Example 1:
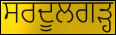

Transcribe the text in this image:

ਸਰਦੂਲਗੜ੍ਹ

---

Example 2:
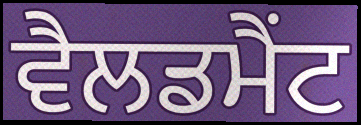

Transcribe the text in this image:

ਵੈਲਡਮੈਂਟ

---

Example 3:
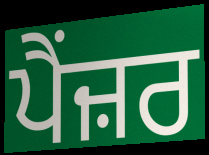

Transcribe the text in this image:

ਪੈਂਜ਼ਰ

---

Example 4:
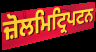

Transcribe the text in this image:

ਜ਼ੋਲਮਿਟ੍ਰਿਪਟਨ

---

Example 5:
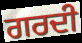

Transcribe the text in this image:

ਗਰਦੀ